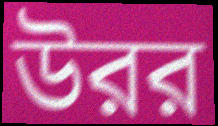
উরর